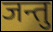
जन्तु